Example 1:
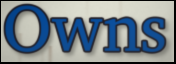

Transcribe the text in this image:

Owns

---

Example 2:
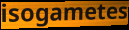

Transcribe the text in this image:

isogametes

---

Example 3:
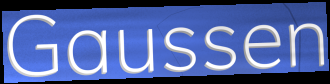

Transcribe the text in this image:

Gaussen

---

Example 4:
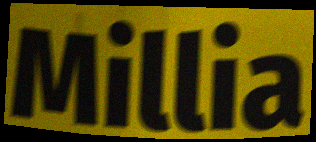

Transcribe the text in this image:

Millia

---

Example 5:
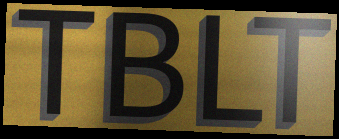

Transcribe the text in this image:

TBLT